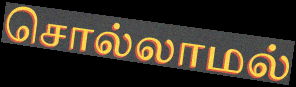
சொல்லாமல்